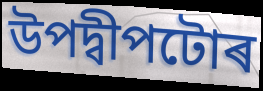
উপদ্বীপটোৰ